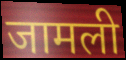
जामली